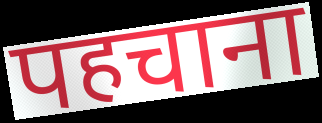
पहचाना